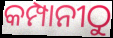
କମ୍ପାନୀଠୁ